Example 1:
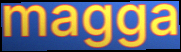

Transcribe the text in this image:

magga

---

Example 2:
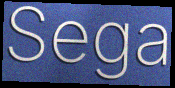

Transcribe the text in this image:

Sega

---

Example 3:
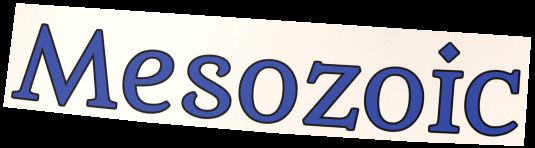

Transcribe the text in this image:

Mesozoic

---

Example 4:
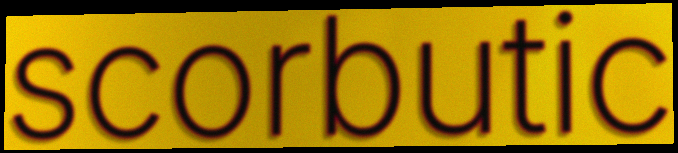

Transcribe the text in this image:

scorbutic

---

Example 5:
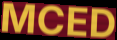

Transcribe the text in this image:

MCED